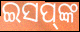
ଇସପ୍‌ଙ୍କ